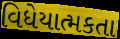
વિધેયાત્મકતા